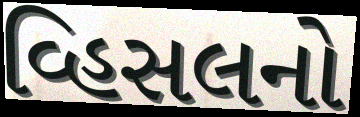
વ્હિસલનો